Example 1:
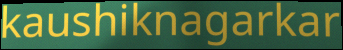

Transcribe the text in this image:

kaushiknagarkar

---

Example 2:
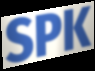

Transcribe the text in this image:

SPK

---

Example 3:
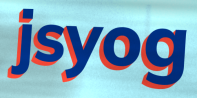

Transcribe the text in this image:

jsyog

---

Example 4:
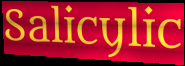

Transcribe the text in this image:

Salicylic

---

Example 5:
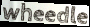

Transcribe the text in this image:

wheedle